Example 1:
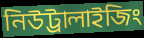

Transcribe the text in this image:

নিউট্রালাইজিং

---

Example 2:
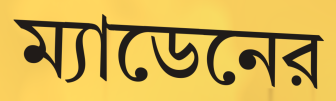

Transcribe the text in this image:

ম্যাডেনের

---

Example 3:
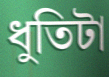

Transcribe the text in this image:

ধুতিটা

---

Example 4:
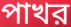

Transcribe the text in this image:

পাখর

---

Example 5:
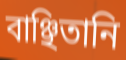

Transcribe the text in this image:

বাঞ্ছিতানি